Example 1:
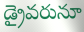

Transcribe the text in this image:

డ్రైవరునూ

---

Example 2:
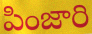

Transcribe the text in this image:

పింజారి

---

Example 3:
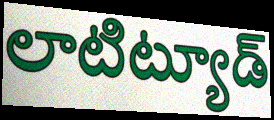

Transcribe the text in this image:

లాటిట్యూడ్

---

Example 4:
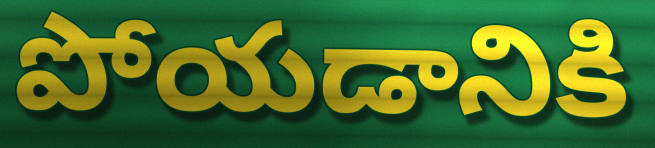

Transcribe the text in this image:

పోయడానికి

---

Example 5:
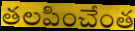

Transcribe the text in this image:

తలపించేంత